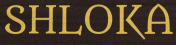
SHLOKA